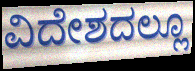
ವಿದೇಶದಲ್ಲೂ